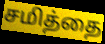
சமித்தை